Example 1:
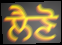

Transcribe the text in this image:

ਲੈਣੋ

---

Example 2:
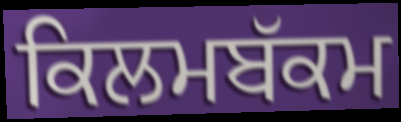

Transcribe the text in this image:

ਕਿਲਮਬੱਕਮ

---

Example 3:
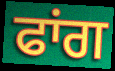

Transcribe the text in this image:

ਫਾਂਗ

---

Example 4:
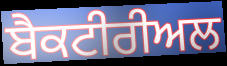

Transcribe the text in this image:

ਬੈਕਟੀਰੀਅਲ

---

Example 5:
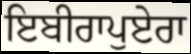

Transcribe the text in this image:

ਇਬੀਰਾਪੁਏਰਾ